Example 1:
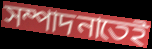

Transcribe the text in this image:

সম্পাদনাতেই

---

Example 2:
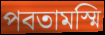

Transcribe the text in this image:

পবতামস্মি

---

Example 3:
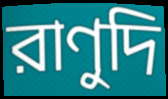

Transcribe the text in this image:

রাণুদি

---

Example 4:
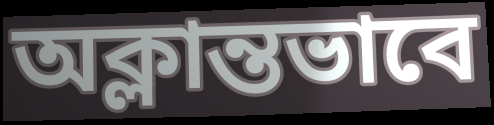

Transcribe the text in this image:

অক্লান্তভাবে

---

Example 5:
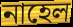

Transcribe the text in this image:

নাহেল